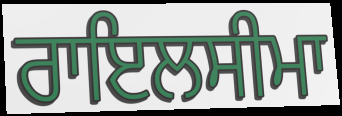
ਰਾਇਲਸੀਮਾ